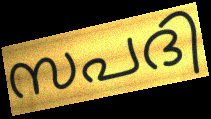
സപദി